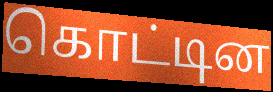
கொட்டின